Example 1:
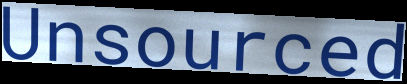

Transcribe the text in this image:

Unsourced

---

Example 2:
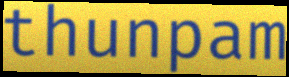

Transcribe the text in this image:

thunpam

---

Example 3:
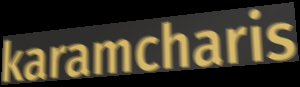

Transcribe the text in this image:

karamcharis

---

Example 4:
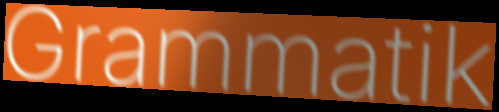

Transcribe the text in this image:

Grammatik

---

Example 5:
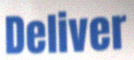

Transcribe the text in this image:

Deliver